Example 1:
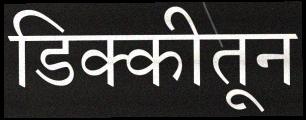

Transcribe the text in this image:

डिक्कीतून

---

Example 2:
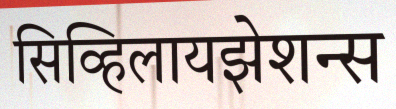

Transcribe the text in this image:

सिव्हिलायझेशन्स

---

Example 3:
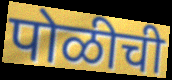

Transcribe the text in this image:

पोळीची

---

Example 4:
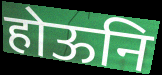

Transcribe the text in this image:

होऊनि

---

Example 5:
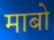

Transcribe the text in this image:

माबो